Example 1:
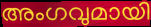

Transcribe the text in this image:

അംഗവുമായി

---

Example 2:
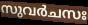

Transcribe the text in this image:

സുവർചസഃ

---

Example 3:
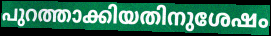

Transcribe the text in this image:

പുറത്താക്കിയതിനുശേഷം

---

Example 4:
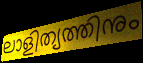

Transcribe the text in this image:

ലാളിത്യത്തിനും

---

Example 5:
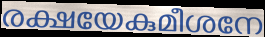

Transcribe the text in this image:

രക്ഷയേകുമീശനേ